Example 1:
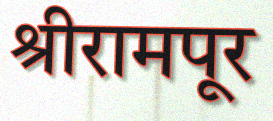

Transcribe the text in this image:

श्रीरामपूर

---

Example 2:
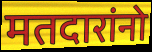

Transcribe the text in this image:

मतदारांनो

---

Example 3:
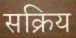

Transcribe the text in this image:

सक्रिय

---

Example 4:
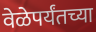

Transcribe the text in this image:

वेळेपर्यंतच्या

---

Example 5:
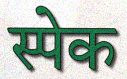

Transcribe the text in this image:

स्पेक